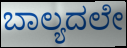
ಬಾಲ್ಯದಲೇ